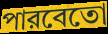
পারবেতো